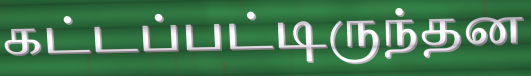
கட்டப்பட்டிருந்தன